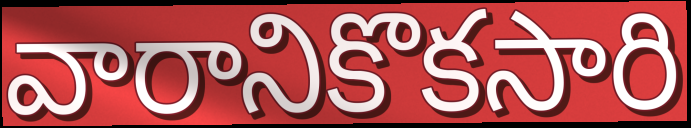
వారానికొకసారి